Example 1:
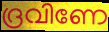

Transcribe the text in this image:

ദ്രവിണേ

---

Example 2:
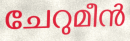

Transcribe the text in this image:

ചേറുമീൻ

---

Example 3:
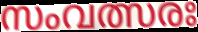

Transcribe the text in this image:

സംവത്സരഃ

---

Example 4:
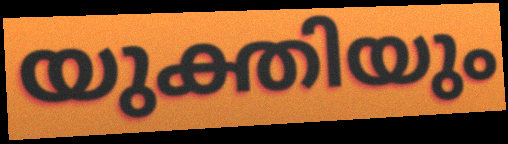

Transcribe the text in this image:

യുക്തിയും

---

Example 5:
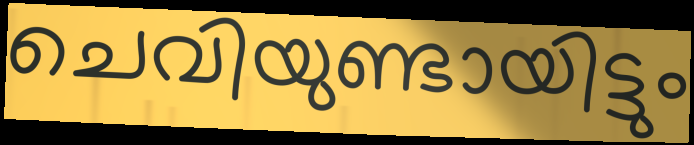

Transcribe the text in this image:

ചെവിയുണ്ടായിട്ടും